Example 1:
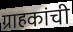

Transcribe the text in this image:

ग्राहकांची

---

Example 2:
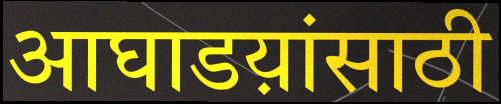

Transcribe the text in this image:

आघाडय़ांसाठी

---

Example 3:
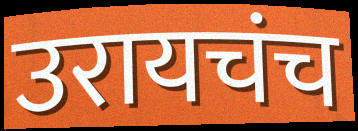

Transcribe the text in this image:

उरायचंच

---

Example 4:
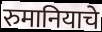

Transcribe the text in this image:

रुमानियाचे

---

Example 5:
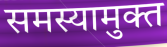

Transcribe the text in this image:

समस्यामुक्त